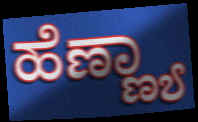
ಹೆಣ್ಣ್ಯಾ